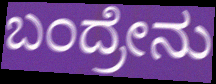
ಬಂದ್ರೇನು